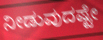
ನೀಡುವುದಷ್ಟೇ